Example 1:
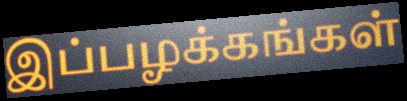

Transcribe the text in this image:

இப்பழக்கங்கள்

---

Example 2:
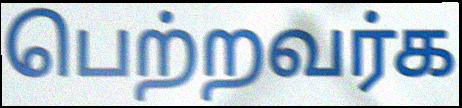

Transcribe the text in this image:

பெற்றவர்க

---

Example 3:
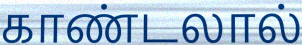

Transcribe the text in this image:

காண்டலால்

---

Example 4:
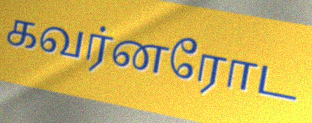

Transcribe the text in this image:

கவர்னரோட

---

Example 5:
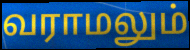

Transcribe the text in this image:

வராமலும்